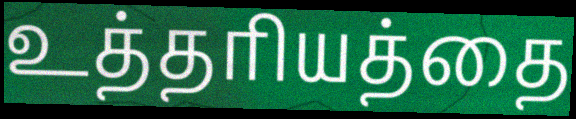
உத்தரியத்தை